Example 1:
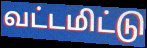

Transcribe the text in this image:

வட்டமிட்டு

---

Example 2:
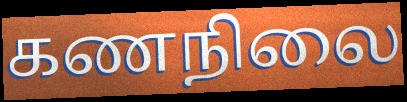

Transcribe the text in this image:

கணநிலை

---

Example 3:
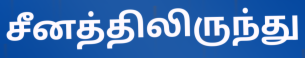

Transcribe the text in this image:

சீனத்திலிருந்து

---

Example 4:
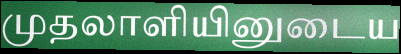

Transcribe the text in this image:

முதலாளியினுடைய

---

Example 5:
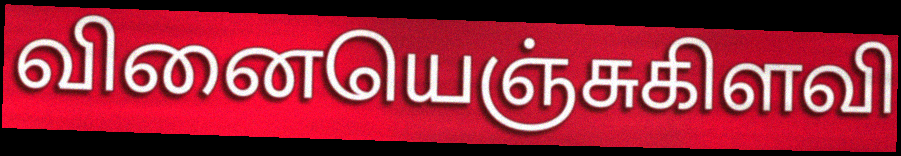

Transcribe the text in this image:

வினையெஞ்சுகிளவி